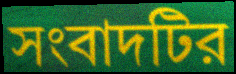
সংবাদটির